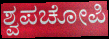
ಶ್ವಪಚೋಪಿ